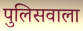
पुलिसवाला